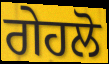
ਗੇਹਲੋ